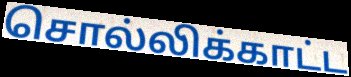
சொல்லிக்காட்ட